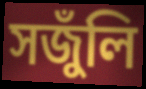
সজুঁলি